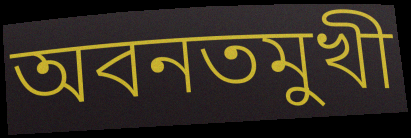
অবনতমুখী